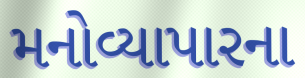
મનોવ્યાપારના